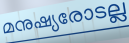
മനുഷ്യരോടല്ല